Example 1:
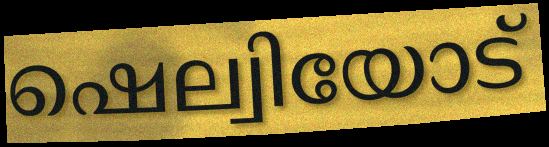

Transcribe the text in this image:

ഷെല്വിയോട്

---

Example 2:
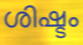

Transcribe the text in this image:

ശിഷ്ടം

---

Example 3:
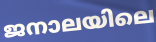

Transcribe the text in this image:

ജനാലയിലെ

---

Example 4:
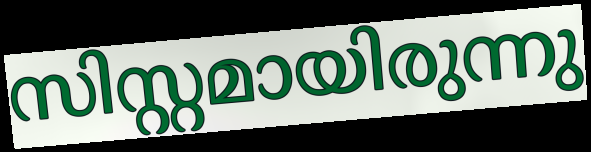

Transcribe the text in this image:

സിസ്റ്റമായിരുന്നു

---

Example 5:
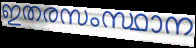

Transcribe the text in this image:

ഇതരസംസ്ഥാന